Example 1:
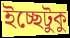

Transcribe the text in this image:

ইচ্ছেটুকু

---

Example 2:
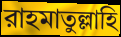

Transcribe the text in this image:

রাহমাতুল্লাহি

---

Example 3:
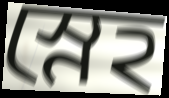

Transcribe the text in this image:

স্নেহ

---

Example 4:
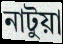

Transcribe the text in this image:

নাটুয়া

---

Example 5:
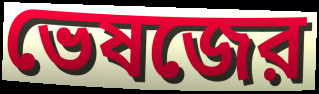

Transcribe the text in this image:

ভেষজের